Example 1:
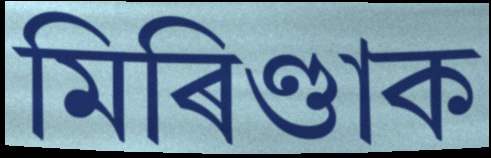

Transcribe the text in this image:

মিৰিণ্ডাক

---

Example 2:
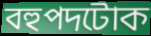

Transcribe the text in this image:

বহুপদটোক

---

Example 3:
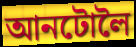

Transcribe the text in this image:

আনটোলৈ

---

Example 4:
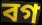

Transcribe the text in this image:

বগ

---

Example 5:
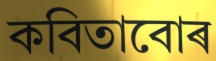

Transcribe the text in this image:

কবিতাবোৰ